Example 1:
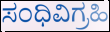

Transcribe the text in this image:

ಸಂಧಿವಿಗ್ರಹಿ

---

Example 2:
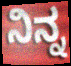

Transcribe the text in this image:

ನಿನ್ನ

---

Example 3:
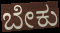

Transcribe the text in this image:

ಬೇಕು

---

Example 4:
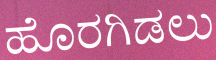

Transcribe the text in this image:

ಹೊರಗಿಡಲು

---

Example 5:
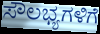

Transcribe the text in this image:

ಸೌಲಭ್ಯಗಳಿಗೆ